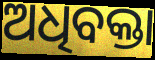
ଅଧିବକ୍ତା